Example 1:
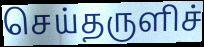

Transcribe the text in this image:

செய்தருளிச்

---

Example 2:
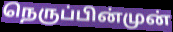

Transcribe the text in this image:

நெருப்பின்முன்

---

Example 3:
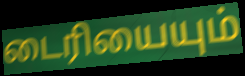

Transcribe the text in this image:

டைரியையும்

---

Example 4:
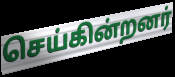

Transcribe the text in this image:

செய்கின்றனர்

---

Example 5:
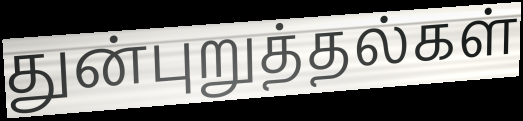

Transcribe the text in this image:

துன்புறுத்தல்கள்